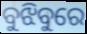
ବୁଝିବୁରେ